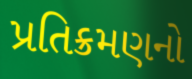
પ્રતિક્રમણનો